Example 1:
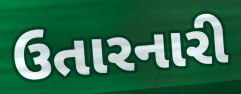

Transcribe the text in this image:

ઉતારનારી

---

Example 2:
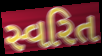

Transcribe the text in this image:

સ્વરિત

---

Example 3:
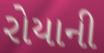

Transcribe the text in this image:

રોયાની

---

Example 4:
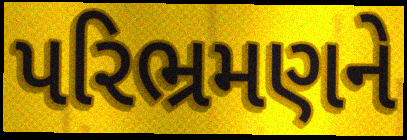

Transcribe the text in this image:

પરિભ્રમણને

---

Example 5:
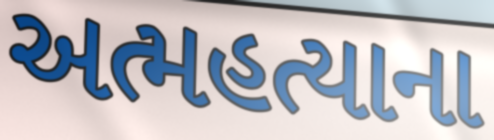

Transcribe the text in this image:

અત્મહત્યાના